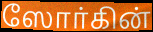
ஸோர்கின்